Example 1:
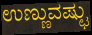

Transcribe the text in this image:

ಉಣ್ಣುವಷ್ಟು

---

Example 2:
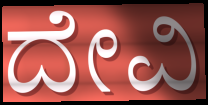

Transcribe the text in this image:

ದೇವಿ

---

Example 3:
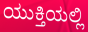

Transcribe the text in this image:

ಯುಕ್ತಿಯಲ್ಲಿ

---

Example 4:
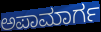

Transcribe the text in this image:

ಅಪಾಮಾರ್ಗ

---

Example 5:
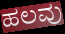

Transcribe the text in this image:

ಹಲವು